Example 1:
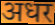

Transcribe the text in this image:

अधर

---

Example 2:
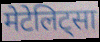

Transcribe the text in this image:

मेटेलिट्सा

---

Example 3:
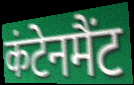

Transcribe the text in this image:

कंटेनमैंट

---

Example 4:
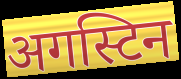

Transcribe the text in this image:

अगस्टिन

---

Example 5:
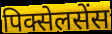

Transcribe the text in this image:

पिक्सेलसेंस